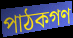
পাঠকগণ